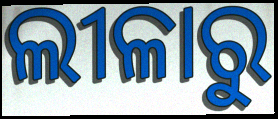
ଲୀଳାରୁ